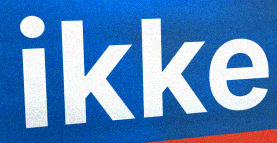
ikke